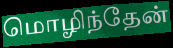
மொழிந்தேன்